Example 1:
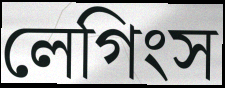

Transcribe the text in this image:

লেগিংস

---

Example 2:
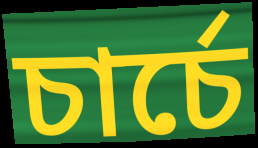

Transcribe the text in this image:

চার্চে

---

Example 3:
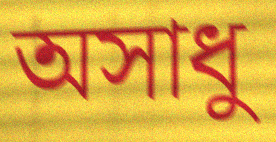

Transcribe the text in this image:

অসাধু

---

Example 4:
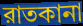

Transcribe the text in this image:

রাতকানা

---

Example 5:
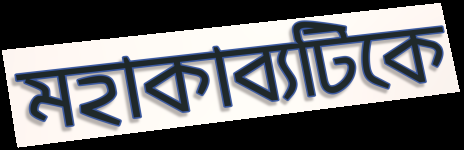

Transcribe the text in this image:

মহাকাব্যটিকে